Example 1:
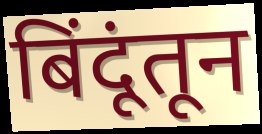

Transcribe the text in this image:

बिंदूंतून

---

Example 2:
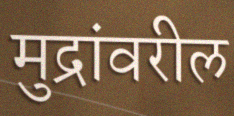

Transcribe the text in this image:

मुद्रांवरील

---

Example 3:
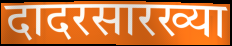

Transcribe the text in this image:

दादरसारख्या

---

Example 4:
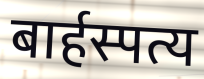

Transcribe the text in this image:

बार्हस्पत्य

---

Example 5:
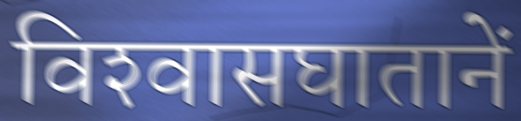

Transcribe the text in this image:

विश्वासघातानें